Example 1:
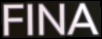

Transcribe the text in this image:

FINA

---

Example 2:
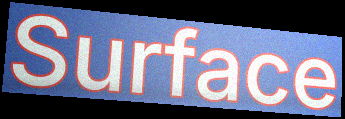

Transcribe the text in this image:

Surface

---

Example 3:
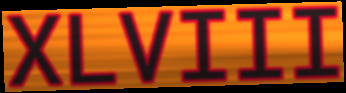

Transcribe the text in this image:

XLVIII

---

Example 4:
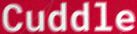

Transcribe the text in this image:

Cuddle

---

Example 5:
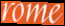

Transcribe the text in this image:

rome